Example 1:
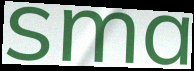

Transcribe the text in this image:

sma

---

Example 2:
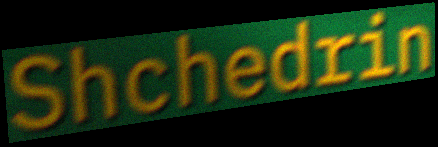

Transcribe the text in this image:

Shchedrin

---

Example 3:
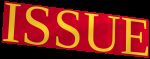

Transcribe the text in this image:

ISSUE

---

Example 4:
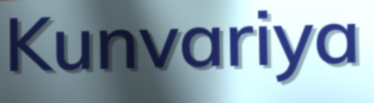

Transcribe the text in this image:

Kunvariya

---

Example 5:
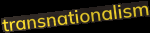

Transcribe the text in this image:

transnationalism